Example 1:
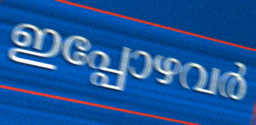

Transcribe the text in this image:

ഇപ്പോഴവർ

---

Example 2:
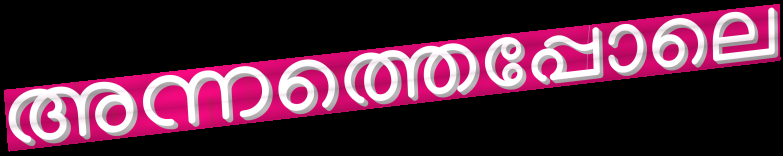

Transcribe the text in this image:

അന്നത്തെപ്പോലെ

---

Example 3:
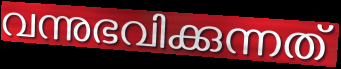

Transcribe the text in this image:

വന്നുഭവിക്കുന്നത്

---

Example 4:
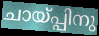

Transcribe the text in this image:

ചായ്പ്പിനു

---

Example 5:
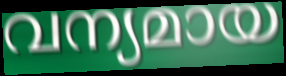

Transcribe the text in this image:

വന്യമായ